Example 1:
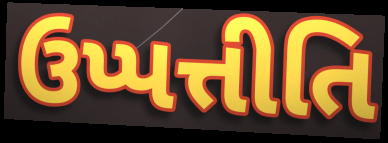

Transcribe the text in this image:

ઉપ્પત્તીતિ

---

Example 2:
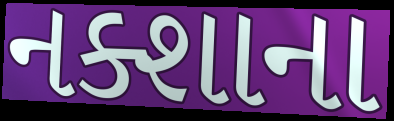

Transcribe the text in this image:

નક્શાના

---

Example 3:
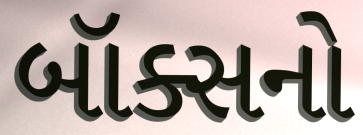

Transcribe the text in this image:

બૉક્સનો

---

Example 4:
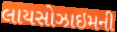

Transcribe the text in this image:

લાયસોઝાઇમની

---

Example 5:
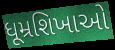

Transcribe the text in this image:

ધૂમ્રશિખાઓ